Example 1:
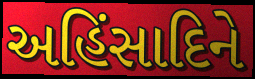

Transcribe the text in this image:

અહિંસાદિને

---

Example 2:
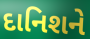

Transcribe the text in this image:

દાનિશને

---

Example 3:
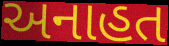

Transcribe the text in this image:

અનાહત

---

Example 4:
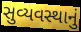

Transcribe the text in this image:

સુવ્યવસ્થાનું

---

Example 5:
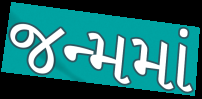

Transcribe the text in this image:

જન્મમાં